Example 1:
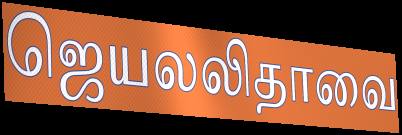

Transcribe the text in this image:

ஜெயலலிதாவை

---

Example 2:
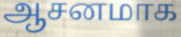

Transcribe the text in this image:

ஆசனமாக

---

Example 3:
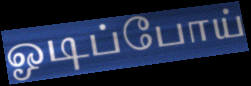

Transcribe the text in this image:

ஓடிப்போய்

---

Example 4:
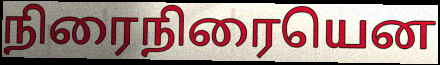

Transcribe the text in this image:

நிரைநிரையென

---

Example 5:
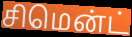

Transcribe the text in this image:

சிமென்ட்